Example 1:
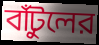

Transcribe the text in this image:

বাঁটুলের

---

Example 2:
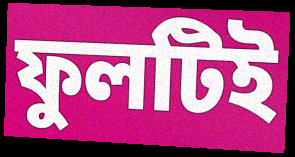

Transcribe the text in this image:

ফুলটিই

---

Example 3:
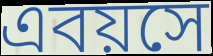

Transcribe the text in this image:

এবয়সে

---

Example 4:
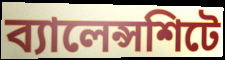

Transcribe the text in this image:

ব্যালেন্সশিটে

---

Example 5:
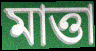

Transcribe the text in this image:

মাত্তা